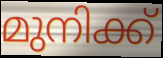
മുനിക്ക്